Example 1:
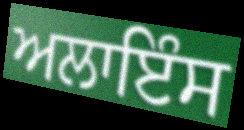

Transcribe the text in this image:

ਅਲਾਇੰਸ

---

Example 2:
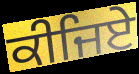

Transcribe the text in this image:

ਕੀਜਿਏ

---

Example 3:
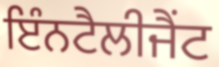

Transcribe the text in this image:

ਇੰਨਟੈਲੀਜੈਂਟ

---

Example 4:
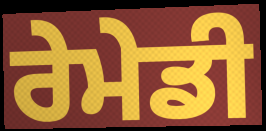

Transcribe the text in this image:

ਰੇਮੇਡੀ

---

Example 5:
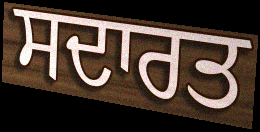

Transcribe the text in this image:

ਸਦਾਰਤ